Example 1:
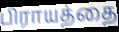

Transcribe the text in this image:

பிராயத்தை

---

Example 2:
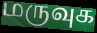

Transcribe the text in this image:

மருவுக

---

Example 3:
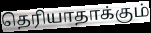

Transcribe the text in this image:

தெரியாதாக்கும்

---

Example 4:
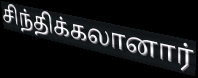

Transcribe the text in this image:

சிந்திக்கலானார்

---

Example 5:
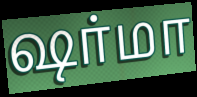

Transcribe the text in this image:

ஷர்மா